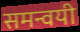
समन्वयी